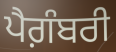
ਪੈਗ਼ੰਬਰੀ